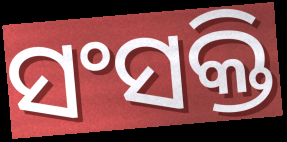
ସଂସକ୍ତି